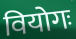
वियोगः